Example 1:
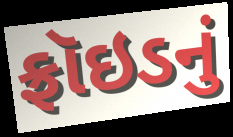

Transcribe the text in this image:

ફ્રૉઇડનું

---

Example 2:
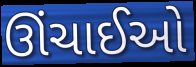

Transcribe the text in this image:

ઊંચાઈઓ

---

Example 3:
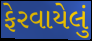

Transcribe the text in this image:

ફેરવાયેલું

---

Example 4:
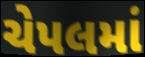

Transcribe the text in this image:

ચેપલમાં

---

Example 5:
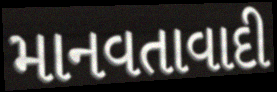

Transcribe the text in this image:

માનવતાવાદી